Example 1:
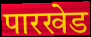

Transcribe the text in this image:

पारखेड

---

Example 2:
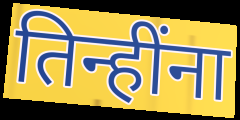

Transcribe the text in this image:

तिन्हींना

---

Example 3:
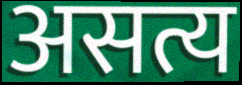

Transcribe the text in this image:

असत्य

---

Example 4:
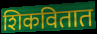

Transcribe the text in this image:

शिकवितात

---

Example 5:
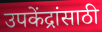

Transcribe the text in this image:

उपकेंद्रांसाठी